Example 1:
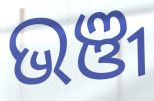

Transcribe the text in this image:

ଭଞ୍ଜ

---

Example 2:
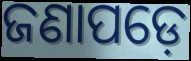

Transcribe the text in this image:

ଜଣାପଡ଼େ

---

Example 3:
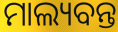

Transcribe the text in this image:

ମାଲ୍ୟବନ୍ତ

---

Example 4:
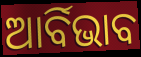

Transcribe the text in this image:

ଆର୍ବିଭାବ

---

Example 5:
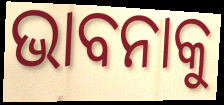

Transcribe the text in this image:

ଭାବନାକୁ